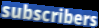
subscribers